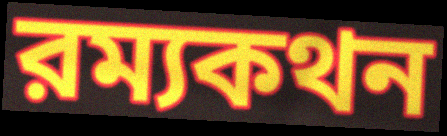
রম্যকথন